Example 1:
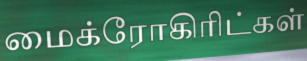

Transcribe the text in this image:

மைக்ரோகிரிட்கள்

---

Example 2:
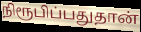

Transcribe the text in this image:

நிரூபிப்பதுதான்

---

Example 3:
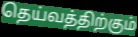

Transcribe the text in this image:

தெய்வத்திற்கும்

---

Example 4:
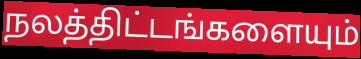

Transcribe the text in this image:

நலத்திட்டங்களையும்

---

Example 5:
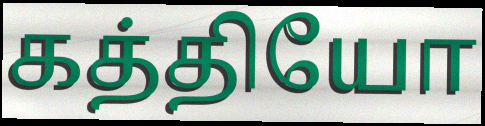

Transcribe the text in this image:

கத்தியோ